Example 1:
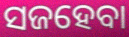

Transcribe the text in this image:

ସଜହେବା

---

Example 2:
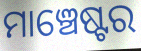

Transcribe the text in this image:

ମାଞ୍ଚେଷ୍ଟର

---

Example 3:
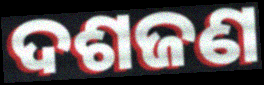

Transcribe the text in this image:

ଦଶଜଣ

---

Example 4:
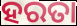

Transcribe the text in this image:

ହରତା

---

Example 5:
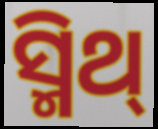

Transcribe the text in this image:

ସ୍ମିଥ୍